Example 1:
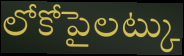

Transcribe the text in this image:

లోకోపైలట్కు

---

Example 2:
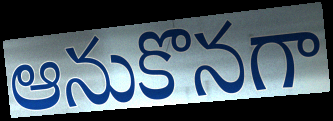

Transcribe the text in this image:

ఆనుకొనగా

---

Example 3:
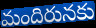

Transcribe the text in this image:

మందిరునకు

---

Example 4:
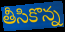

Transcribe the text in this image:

తీసికొన్న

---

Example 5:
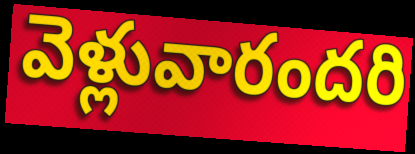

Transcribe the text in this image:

వెళ్లువారందరి